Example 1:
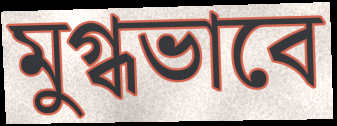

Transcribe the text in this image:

মুগ্ধভাবে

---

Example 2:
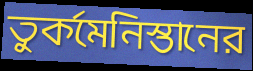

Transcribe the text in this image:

তুর্কমেনিস্তানের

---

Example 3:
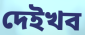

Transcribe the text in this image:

দেইখব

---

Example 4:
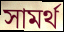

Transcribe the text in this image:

সামর্থ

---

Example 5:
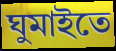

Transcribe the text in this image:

ঘুমাইতে